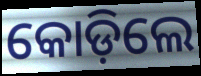
କୋଡ଼ିଲେ